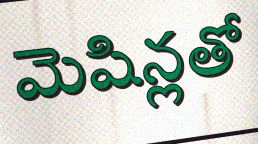
మెషిన్లతో